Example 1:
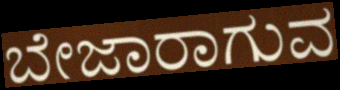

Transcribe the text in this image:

ಬೇಜಾರಾಗುವ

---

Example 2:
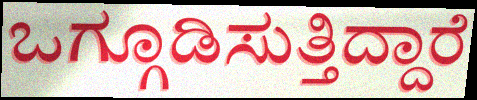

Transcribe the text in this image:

ಒಗ್ಗೂಡಿಸುತ್ತಿದ್ದಾರೆ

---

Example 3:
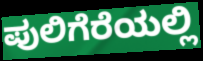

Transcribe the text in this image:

ಪುಲಿಗೆರೆಯಲ್ಲಿ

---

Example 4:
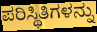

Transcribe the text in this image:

ಪರಿಸ್ಥಿತಿಗಳನ್ನು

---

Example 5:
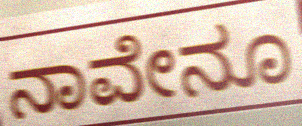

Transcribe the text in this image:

ನಾವೇನೂ